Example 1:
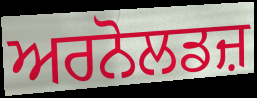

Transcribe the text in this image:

ਅਰਨੋਲਡਜ਼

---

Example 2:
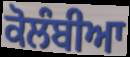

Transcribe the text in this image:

ਕੋਲੰਬੀਆ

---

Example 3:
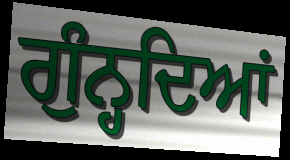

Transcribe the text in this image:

ਗੁੰਨ੍ਹਦਿਆਂ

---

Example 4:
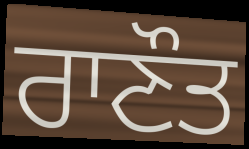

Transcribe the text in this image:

ਰਾਣੌਤ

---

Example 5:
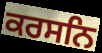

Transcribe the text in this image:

ਕਰਸਨਿ